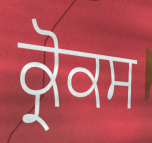
ਕ੍ਰੋਕਸ